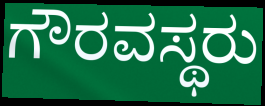
ಗೌರವಸ್ಥರು